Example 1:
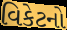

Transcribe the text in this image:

વિકેટનો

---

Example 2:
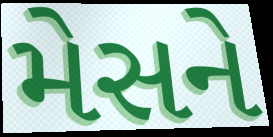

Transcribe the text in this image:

મેસને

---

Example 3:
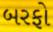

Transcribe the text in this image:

બરફો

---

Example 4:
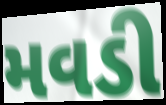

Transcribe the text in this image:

મવડી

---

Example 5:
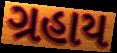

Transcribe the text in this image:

ગ્રહાય